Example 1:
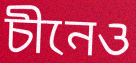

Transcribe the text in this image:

চীনেও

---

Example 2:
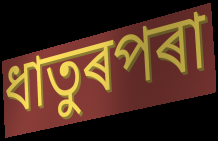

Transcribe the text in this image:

ধাতুৰপৰা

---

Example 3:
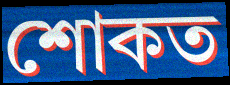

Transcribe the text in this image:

শোকত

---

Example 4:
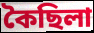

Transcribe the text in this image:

কৈছিলা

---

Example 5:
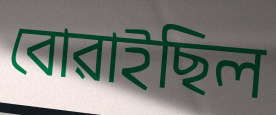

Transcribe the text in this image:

বোৱাইছিল